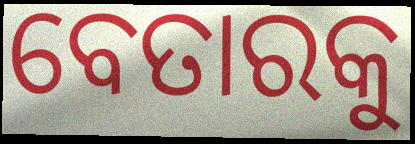
ବେତାରକୁ